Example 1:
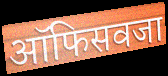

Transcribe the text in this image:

ऑफिसवजा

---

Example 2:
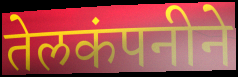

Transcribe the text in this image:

तेलकंपनीने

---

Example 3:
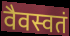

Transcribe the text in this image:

वैवस्वतं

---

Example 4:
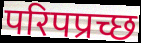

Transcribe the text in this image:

परिपप्रच्छ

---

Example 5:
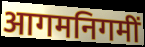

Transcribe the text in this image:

आगमनिगमीं